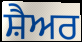
ਸ਼ੈਅਰ